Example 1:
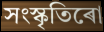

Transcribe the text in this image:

সংস্কৃতিৰো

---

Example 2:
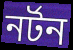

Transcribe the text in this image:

নৰ্টন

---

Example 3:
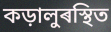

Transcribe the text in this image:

কড়ালুৰস্থিত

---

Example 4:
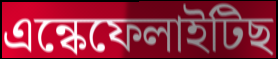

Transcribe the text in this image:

এন্কেফেলাইটিছ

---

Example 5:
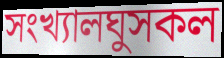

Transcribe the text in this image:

সংখ্যালঘুসকল